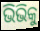
ଭିଭିକୁ